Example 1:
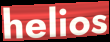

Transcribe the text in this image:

helios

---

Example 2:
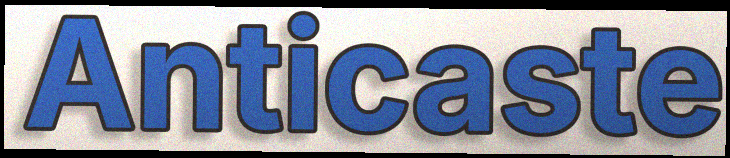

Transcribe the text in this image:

Anticaste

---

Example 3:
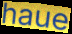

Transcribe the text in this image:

haue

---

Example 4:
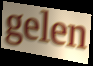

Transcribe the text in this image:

gelen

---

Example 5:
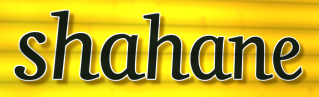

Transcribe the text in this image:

shahane